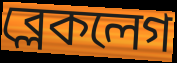
ব্লেকলেগ